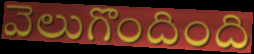
వెలుగొందింది